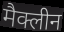
मैक्लीन